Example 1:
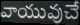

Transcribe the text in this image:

వాయువుచే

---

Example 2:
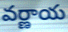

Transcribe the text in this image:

వర్ణాయ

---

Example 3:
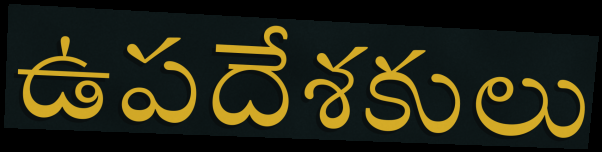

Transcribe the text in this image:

ఉపదేశకులు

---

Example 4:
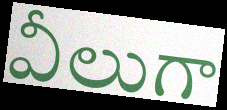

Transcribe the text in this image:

వీలుగా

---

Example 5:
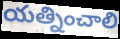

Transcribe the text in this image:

యత్నించాలి